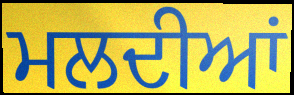
ਮਲਦੀਆਂ